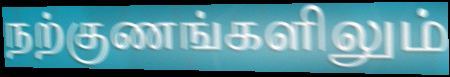
நற்குணங்களிலும்